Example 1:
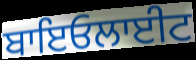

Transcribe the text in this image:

ਬਾਇਓਲਾਈਟ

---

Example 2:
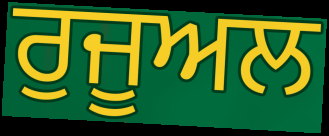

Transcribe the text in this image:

ਰੁਜੂਅਲ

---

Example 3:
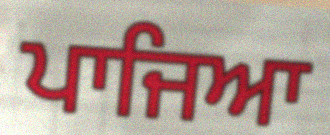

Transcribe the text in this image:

ਪਾਜਿਆ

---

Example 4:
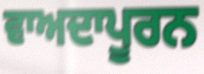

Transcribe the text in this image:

ਵਾਅਦਾਪੂਰਨ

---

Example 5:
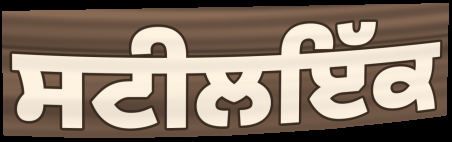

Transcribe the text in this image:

ਸਟੀਲਇੱਕ